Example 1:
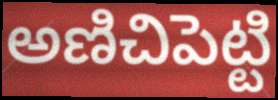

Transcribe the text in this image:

అణిచిపెట్టి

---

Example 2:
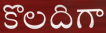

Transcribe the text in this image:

కొలదిగా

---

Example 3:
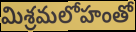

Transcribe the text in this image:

మిశ్రమలోహంతో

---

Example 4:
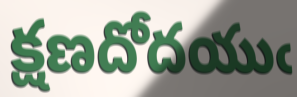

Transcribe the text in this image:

క్షణదోదయుఁ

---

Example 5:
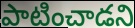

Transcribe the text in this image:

పాటించాడని